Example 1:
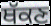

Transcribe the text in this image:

ਥੱਕਣ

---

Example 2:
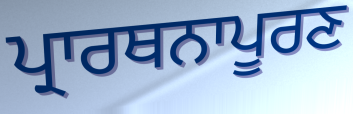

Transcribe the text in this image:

ਪ੍ਰਾਰਥਨਾਪੂਰਣ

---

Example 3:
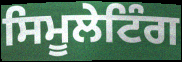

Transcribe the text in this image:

ਸਿਮੂਲੇਟਿੰਗ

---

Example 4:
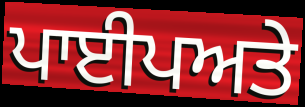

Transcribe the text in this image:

ਪਾਈਪਅਤੇ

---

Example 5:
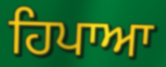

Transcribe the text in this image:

ਹਿਪਾਆ